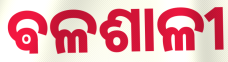
ଵଳଶାଳୀ